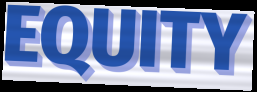
EQUITY